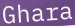
Ghara